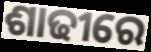
ଶାଢୀରେ